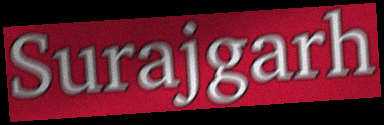
Surajgarh